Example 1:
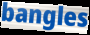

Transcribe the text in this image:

bangles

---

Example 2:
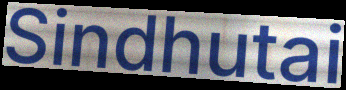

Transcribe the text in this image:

Sindhutai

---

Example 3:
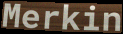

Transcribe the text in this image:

Merkin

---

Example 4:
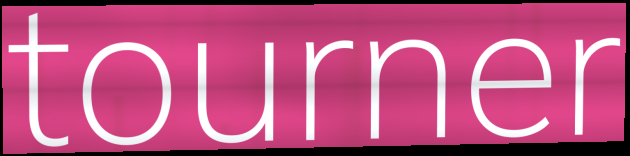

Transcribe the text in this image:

tourner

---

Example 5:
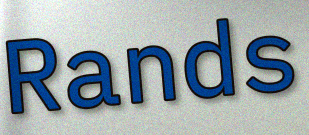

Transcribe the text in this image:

Rands